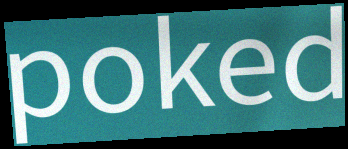
poked